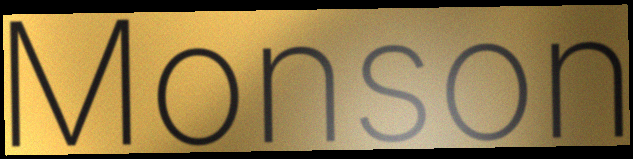
Monson